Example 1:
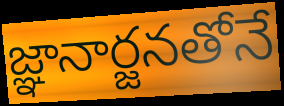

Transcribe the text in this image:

జ్ఞానార్జనతోనే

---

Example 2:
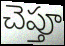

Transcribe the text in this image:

చెప్తూ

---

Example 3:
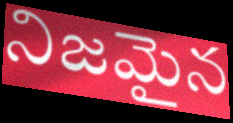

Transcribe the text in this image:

నిజమైన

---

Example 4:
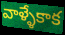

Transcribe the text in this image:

వాళ్ళేకాక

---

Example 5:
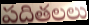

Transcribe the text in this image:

పదితలలు